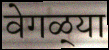
वेगळ्‌या